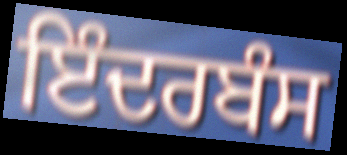
ਇੰਦਰਬੰਸ